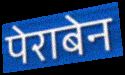
पेराबेन